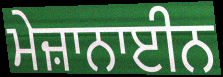
ਮੇਜ਼ਾਨਾਈਨ